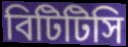
বিটিটিসি